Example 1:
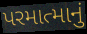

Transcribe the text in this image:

પરમાત્માનું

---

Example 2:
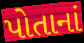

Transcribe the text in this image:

પોતાનાં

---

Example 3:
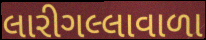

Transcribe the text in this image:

લારીગલ્લાવાળા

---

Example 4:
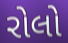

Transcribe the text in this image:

રોલો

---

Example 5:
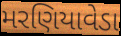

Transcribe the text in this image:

મરણિયાવેડા